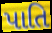
પાતિ